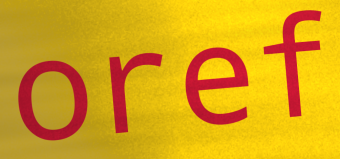
oref